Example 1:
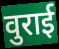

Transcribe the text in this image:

वुराई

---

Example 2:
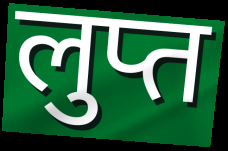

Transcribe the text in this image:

लुप्‍त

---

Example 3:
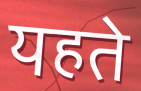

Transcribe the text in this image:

यहते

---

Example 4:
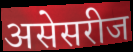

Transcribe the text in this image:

असेसरीज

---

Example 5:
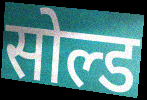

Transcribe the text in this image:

सोल्ड